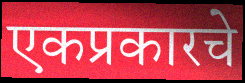
एकप्रकारचे